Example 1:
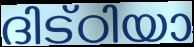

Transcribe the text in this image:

ദിട്ഠിയാ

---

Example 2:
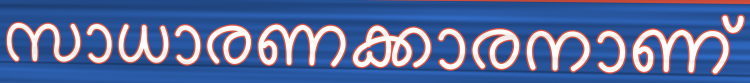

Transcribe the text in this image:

സാധാരണക്കാരനാണ്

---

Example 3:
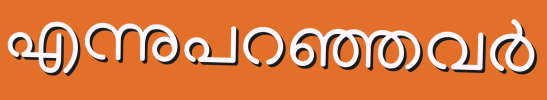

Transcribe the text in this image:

എന്നുപറഞ്ഞവർ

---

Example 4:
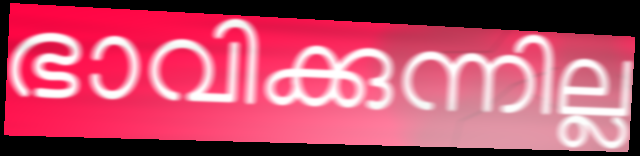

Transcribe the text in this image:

ഭാവിക്കുന്നില്ല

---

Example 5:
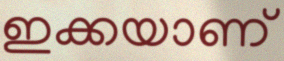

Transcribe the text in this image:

ഇക്കയാണ്